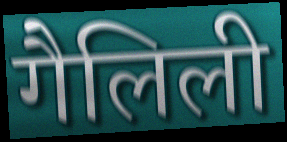
गैलिली